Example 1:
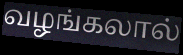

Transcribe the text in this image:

வழங்கலால்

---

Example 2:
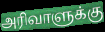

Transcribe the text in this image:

அரிவாளுக்கு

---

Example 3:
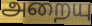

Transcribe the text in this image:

அறையு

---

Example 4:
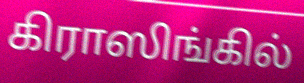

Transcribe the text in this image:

கிராஸிங்கில்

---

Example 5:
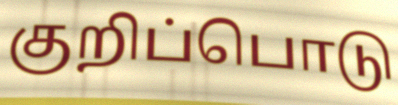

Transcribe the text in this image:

குறிப்பொடு